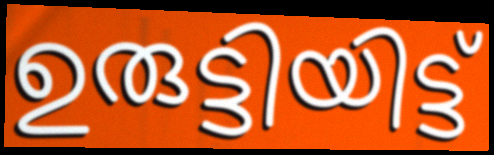
ഉരുട്ടിയിട്ട്